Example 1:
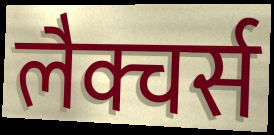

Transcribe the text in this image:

लैक्चर्स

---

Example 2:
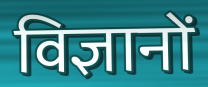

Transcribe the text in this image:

विज्ञानों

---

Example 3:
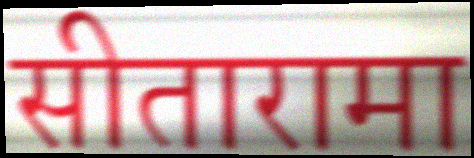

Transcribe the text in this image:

सीतारामा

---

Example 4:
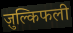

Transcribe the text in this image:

ज़ुल्किफली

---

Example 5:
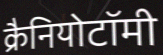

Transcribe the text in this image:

क्रैनियोटॉमी